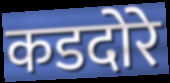
कडदोरे